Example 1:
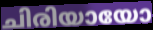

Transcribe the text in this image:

ചിരിയായോ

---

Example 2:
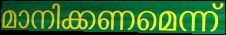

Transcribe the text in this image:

മാനിക്കണമെന്ന്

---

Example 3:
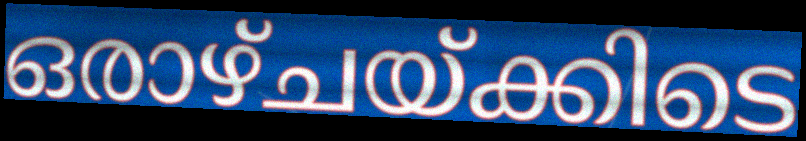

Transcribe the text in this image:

ഒരാഴ്ചയ്ക്കിടെ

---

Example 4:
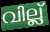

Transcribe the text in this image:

വില്ല്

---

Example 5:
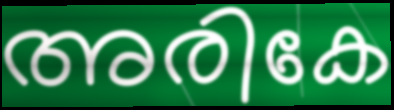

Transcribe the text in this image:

അരികേ